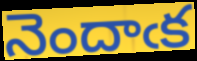
నెందాఁక